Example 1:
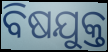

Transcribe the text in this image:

ବିଷଯୁକ୍ତ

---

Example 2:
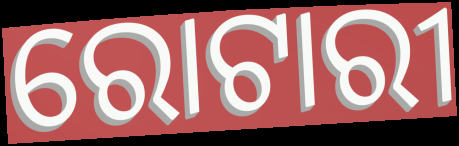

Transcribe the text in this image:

ରୋଟାରୀ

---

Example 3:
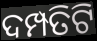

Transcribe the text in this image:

ଦମ୍ପତିଟି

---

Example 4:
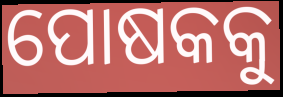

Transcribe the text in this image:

ପୋଷକକୁ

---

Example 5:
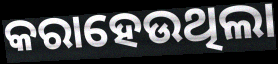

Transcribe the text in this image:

କରାହେଉଥିଲା